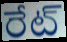
రేట్